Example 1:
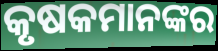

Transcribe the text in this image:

କୃଷକମାନଙ୍କର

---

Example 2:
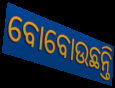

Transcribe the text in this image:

ବୋବୋଉଛନ୍ତି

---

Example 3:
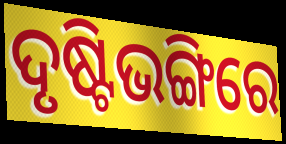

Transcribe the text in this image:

ଦୃଷ୍ଟିଭଙ୍ଗିରେ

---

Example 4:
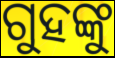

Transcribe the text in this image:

ଗୁହଙ୍କୁ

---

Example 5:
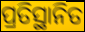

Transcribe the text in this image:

ପ୍ରତିସ୍ଥାନିତ